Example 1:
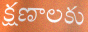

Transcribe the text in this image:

క్షణాలకు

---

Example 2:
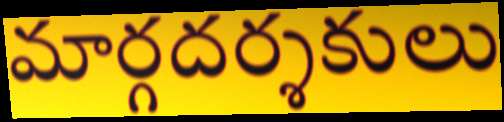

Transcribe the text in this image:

మార్గదర్శకులు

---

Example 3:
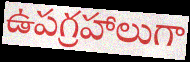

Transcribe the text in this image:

ఉపగ్రహాలుగా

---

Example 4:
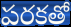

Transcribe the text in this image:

పరకతో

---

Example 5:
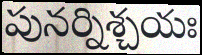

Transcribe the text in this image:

పునర్నిశ్చయః